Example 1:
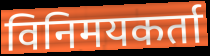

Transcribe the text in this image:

विनिमयकर्ता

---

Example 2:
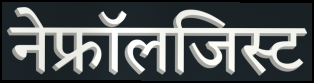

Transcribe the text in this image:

नेफ्रॉलजिस्ट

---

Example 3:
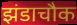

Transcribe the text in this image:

झंडाचौक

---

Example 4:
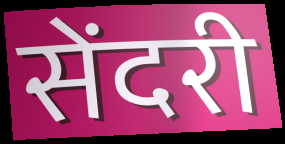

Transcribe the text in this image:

सेंदरी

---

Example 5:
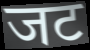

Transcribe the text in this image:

जट